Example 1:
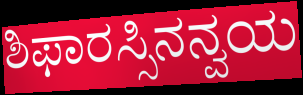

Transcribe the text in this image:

ಶಿಫಾರಸ್ಸಿನನ್ವಯ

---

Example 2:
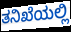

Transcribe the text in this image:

ತನಿಖೆಯಲ್ಲಿ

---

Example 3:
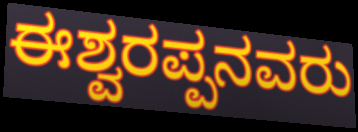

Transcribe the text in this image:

ಈಶ್ವರಪ್ಪನವರು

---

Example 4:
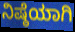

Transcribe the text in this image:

ನಿಷ್ಠೆಯಾಗಿ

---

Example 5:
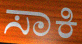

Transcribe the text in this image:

ಸಾಕಿ